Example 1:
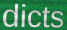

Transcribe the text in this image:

dicts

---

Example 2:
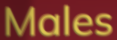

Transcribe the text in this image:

Males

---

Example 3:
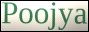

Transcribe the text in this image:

Poojya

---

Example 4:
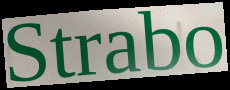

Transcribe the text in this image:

Strabo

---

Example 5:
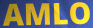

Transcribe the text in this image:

AMLO